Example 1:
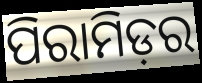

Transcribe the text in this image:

ପିରାମିଡ଼ର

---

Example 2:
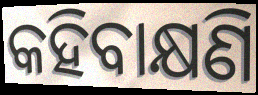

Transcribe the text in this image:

କହିବାକ୍ଷଣି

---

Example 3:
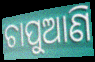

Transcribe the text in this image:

ଚାପୁଆଣି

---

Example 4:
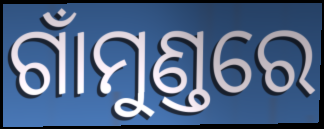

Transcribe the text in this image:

ଗାଁମୁଣ୍ଡରେ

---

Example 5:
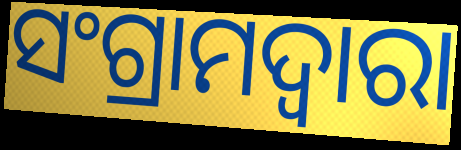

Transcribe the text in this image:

ସଂଗ୍ରାମଦ୍ଵାରା